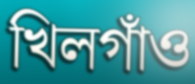
খিলগাঁও